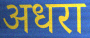
अधरा